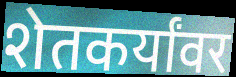
शेतकर्यांवर